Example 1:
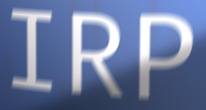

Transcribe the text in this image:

IRP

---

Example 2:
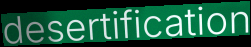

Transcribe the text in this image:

desertification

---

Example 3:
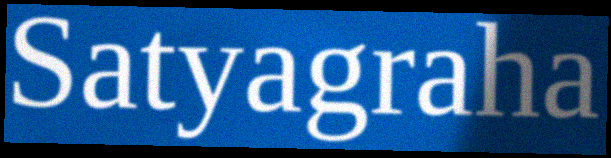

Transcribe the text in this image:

Satyagraha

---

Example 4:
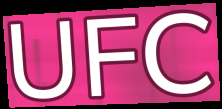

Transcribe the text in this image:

UFC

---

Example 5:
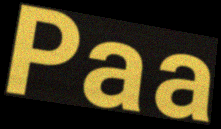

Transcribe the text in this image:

Paa